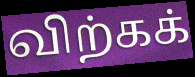
விற்கக்